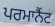
ਪਰਮਾਨੈਂਟ